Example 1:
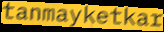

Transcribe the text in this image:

tanmayketkar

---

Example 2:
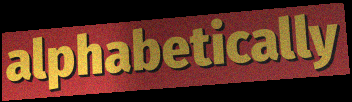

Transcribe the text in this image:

alphabetically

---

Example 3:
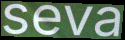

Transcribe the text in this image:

seva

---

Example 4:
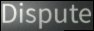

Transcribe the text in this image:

Dispute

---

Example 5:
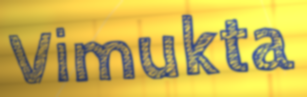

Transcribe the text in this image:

Vimukta